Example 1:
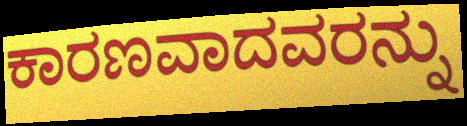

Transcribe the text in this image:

ಕಾರಣವಾದವರನ್ನು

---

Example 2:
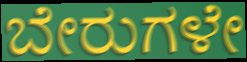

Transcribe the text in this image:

ಬೇರುಗಳೇ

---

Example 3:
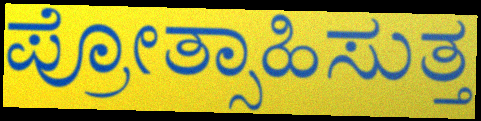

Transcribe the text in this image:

ಪ್ರೋತ್ಸಾಹಿಸುತ್ತ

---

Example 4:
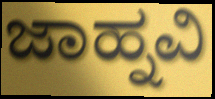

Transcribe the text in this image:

ಜಾಹ್ನವಿ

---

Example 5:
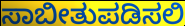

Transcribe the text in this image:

ಸಾಬೀತುಪಡಿಸಲಿ